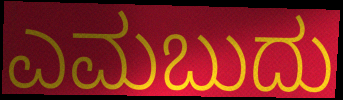
ಎಮಬುದು